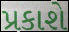
પ્રકાશે